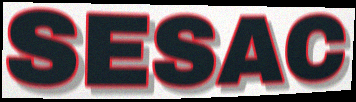
SESAC